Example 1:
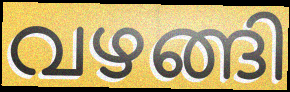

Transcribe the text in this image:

വഴങ്ങി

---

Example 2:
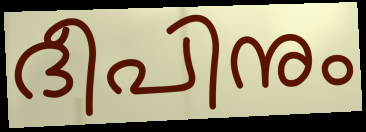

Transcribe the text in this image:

ദീപിനും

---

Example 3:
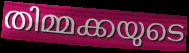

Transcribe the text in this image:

തിമ്മക്കയുടെ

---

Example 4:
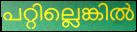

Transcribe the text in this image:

പറ്റില്ലെങ്കിൽ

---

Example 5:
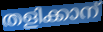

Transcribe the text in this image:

തളിക്കാന്